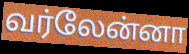
வர்லேன்னா